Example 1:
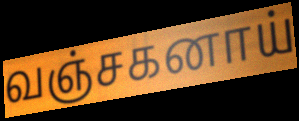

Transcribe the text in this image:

வஞ்சகனாய்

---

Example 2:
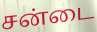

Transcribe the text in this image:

சன்டை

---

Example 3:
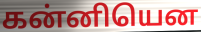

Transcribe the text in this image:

கன்னியென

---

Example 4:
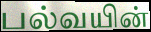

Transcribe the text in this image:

பல்வயின்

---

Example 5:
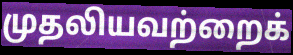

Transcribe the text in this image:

முதலியவற்றைக்